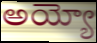
అయ్యో